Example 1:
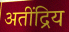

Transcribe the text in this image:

अतींद्रिय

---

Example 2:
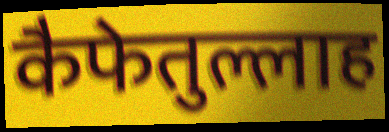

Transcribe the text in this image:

कैफेतुल्लाह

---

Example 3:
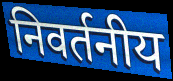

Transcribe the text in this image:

निवर्तनीय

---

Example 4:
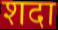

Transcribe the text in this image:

शदा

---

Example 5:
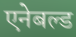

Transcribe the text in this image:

एनेबल्ड